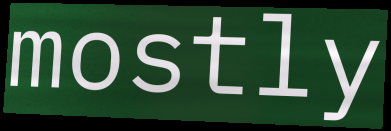
mostly